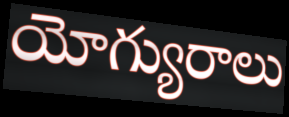
యోగ్యురాలు